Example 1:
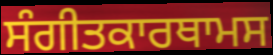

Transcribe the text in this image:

ਸੰਗੀਤਕਾਰਥਾਮਸ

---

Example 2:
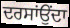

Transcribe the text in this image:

ਦਰਸਾਂਉਂਦਾ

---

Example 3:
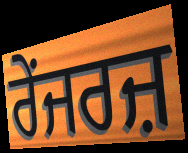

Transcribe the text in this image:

ਰੇਂਜਰਜ਼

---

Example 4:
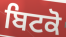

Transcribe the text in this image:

ਬਿਟਕੋ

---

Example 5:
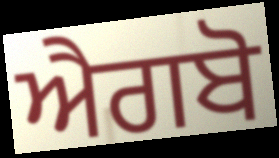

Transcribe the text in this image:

ਐਗਬੋ